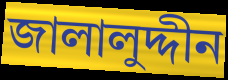
জালালুদ্দীন